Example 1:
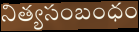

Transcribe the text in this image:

నిత్యసంబంధం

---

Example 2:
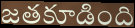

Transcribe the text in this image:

జతకూడింది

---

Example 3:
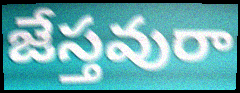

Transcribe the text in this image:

జేస్తవురా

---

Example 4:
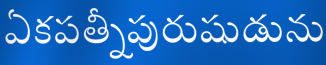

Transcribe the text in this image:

ఏకపత్నీపురుషుడును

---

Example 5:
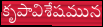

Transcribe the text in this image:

కృపావిశేషమున